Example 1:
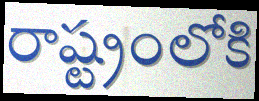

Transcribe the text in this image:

రాష్ట్రంలోకి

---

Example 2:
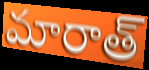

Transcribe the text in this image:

మారాత్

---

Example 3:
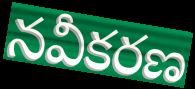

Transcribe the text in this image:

నవీకరణ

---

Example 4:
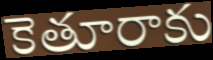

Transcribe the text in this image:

కెతూరాకు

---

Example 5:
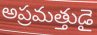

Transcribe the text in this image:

అప్రమత్తుడై